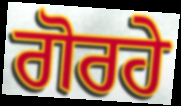
ਗੋਰਹੇ